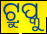
ଟ୍ରୁପ୍କୁ